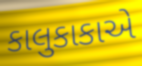
કાલુકાકાએ